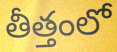
తీత్తంలో